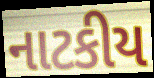
નાટકીય